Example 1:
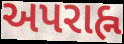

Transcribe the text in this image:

અપરાહ્ન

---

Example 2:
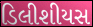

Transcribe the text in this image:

ડિલીશીયસ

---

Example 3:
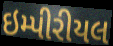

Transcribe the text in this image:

ઇમ્પીરીયલ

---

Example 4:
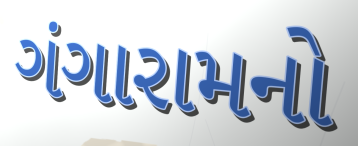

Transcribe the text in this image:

ગંગારામનો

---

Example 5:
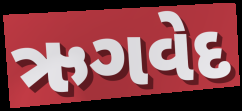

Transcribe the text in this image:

ઋગવેદ